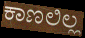
ಕಾಣಲಿಲ್ಲ